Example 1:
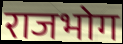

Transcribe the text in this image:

राजभोग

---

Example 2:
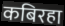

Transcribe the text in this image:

कबिरहा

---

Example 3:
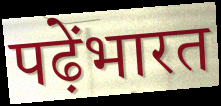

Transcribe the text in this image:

पढ़ेंभारत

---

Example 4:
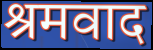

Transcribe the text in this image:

श्रमवाद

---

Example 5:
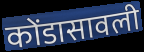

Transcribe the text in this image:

कोंडासावली